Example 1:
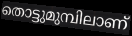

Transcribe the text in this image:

തൊട്ടുമുമ്പിലാണ്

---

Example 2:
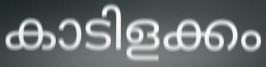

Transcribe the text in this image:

കാടിളക്കം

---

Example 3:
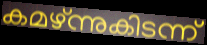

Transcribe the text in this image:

കമഴ്ന്നുകിടന്ന്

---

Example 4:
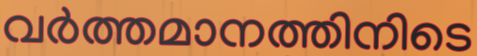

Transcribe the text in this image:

വർത്തമാനത്തിനിടെ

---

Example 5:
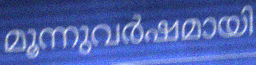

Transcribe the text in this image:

മൂന്നുവർഷമായി